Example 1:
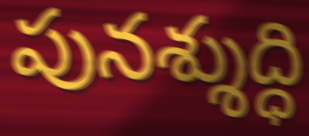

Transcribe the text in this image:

పునశ్శుద్ధి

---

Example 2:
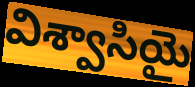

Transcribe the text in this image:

విశ్వాసియై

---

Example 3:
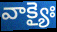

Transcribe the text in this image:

వాక్యైః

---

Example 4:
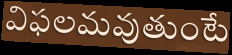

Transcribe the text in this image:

విఫలమవుతుంటే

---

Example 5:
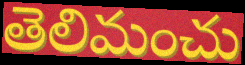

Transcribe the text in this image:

తెలిమంచు